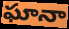
ఘానా